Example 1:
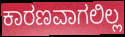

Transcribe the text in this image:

ಕಾರಣವಾಗಲಿಲ್ಲ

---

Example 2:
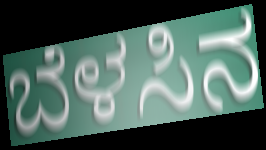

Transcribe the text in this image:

ಬೆಳಸಿನ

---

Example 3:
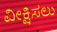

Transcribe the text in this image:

ವೀಕ್ಷಿಸಲು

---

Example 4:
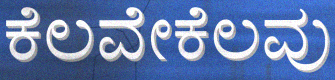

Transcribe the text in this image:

ಕೆಲವೇಕೆಲವು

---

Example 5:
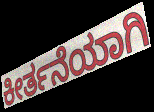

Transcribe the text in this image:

ಕೀರ್ತನೆಯಾಗಿ